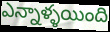
ఎన్నాళ్ళయింది